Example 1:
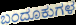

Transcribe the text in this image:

ಬಂದೂಕುಗಳ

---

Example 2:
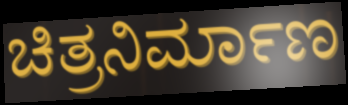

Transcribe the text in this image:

ಚಿತ್ರನಿರ್ಮಾಣ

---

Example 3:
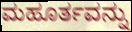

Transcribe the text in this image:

ಮಹೂರ್ತವನ್ನು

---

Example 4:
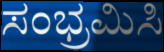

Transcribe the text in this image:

ಸಂಭ್ರಮಿಸಿ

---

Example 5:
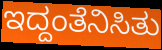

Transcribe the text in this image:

ಇದ್ದಂತೆನಿಸಿತು